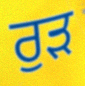
ਰੁੜ